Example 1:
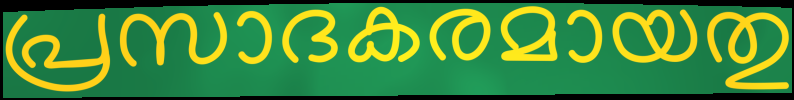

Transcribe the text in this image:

പ്രസാദകരമായതു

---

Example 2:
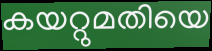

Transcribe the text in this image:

കയറ്റുമതിയെ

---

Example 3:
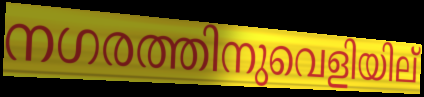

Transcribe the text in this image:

നഗരത്തിനുവെളിയില്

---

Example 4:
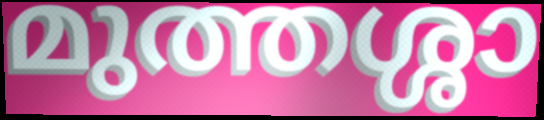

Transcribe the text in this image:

മുത്തശ്ശാ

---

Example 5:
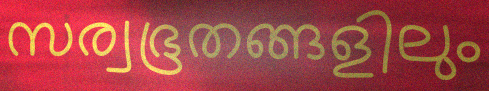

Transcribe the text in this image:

സര്വഭൂതങ്ങളിലും